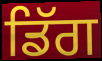
ਡਿੱਗ